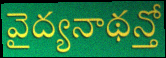
వైద్యనాథన్తో